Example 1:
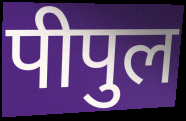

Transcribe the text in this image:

पीपुल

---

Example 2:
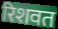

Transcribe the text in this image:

रिशवत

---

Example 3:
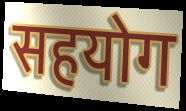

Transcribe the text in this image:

सहयोग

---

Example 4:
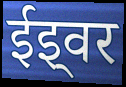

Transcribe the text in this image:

ईइ्वर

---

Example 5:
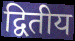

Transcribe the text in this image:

द्वितीय